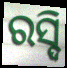
ରସ୍ଦି